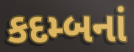
કદમ્બનાં